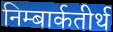
निम्बार्कतीर्थ